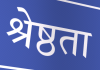
श्रेष्ठता